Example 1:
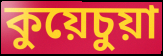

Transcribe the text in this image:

কুয়েচুয়া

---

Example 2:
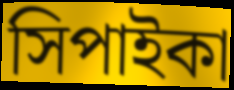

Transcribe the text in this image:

সিপাইকা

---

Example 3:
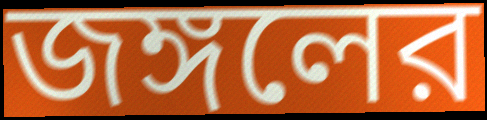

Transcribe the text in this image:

জঙ্গলের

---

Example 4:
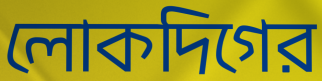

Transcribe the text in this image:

লোকদিগের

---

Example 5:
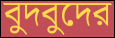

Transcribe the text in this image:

বুদবুদের